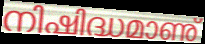
നിഷിദ്ധമാണു്